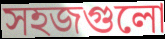
সহজগুলো